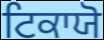
ਟਿਕਾਯੋ